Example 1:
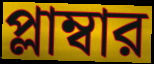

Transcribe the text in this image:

প্লাম্বার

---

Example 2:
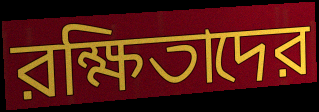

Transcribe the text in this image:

রক্ষিতাদের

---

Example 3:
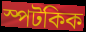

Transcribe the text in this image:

স্পটকিক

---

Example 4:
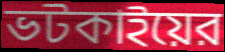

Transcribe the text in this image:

ভটকাইয়ের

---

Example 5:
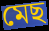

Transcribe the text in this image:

মেছ